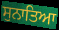
ਸੁਨਾਤਿਆ